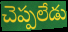
చెప్పలేడు